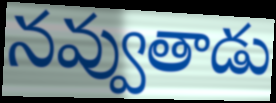
నవ్వుతాడు